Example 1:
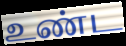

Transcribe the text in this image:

உண்ட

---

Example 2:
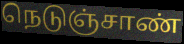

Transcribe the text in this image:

நெடுஞ்சாண்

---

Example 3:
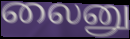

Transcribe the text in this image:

லைனு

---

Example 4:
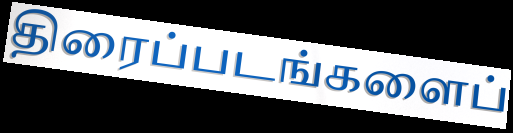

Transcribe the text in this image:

திரைப்படங்களைப்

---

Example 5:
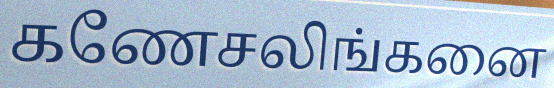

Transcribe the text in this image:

கணேசலிங்கனை